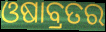
ଓଷାବ୍ରତର